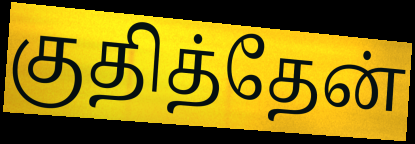
குதித்தேன்